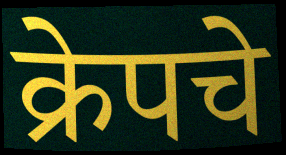
क्रेपचे